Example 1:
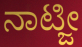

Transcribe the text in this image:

ನಾಟ್ಜೀ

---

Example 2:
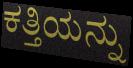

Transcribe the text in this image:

ಕತ್ತಿಯನ್ನು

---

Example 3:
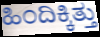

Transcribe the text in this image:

ಹಿಂದಿಕ್ಕಿತ್ತು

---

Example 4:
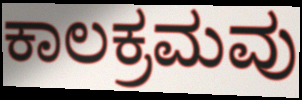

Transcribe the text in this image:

ಕಾಲಕ್ರಮವು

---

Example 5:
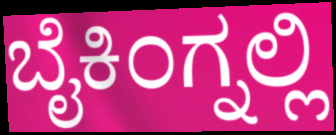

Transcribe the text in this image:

ಬೈಕಿಂಗ್ನಲ್ಲಿ